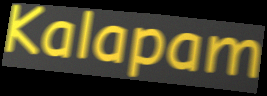
Kalapam